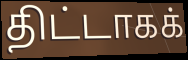
திட்டாகக்